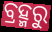
ବ୍ରହ୍ମରୁ